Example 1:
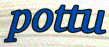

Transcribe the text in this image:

pottu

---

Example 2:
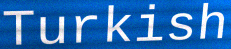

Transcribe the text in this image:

Turkish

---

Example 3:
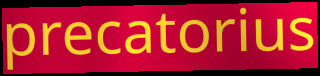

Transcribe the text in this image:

precatorius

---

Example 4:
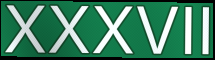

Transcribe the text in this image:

XXXVII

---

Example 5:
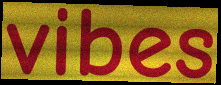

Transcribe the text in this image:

vibes